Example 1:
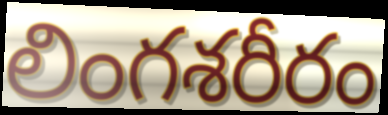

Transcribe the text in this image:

లింగశరీరం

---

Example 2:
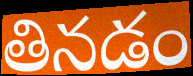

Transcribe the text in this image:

తినడం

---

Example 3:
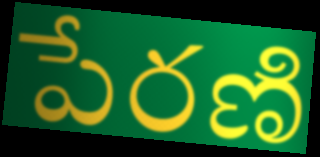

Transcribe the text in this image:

పేరణి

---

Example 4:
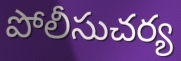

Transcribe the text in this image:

పోలీసుచర్య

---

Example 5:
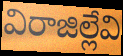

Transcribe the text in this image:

విరాజిల్లేవి